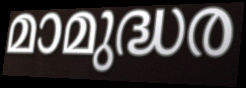
മാമുദ്ധര